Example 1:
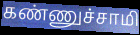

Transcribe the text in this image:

கண்ணுச்சாமி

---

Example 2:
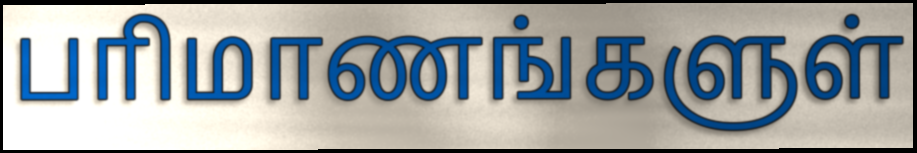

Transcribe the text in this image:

பரிமாணங்களுள்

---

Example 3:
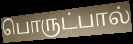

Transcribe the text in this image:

பொருட்பால்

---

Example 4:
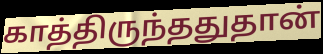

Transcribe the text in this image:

காத்திருந்ததுதான்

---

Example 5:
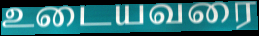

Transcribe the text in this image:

உடையவரை